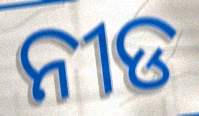
ନୀଡ